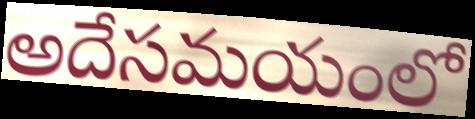
అదేసమయంలో